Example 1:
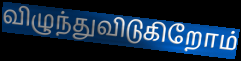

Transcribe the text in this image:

விழுந்துவிடுகிறோம்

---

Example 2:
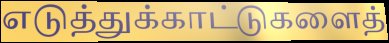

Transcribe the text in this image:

எடுத்துக்காட்டுகளைத்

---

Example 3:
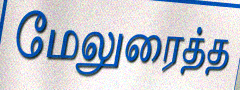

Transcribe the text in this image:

மேலுரைத்த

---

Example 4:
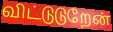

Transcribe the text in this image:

விட்டுடுறேன்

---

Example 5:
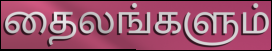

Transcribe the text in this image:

தைலங்களும்